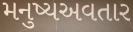
મનુષ્યઅવતાર